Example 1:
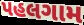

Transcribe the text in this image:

પહલગામ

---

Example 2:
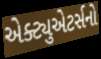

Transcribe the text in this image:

એક્ટ્યુએટર્સનો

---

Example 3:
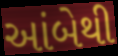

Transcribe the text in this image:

આંબેથી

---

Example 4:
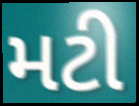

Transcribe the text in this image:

મટી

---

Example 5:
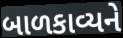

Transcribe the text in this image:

બાળકાવ્યને